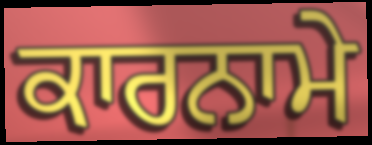
ਕਾਰਨਾਮੇ